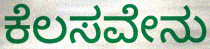
ಕೆಲಸವೇನು